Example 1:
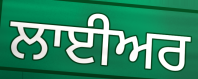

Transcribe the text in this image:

ਲਾਈਅਰ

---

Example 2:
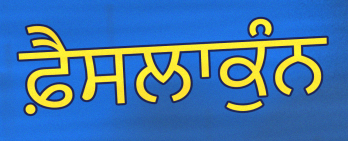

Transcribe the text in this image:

ਫ਼ੈਸਲਾਕੁੰਨ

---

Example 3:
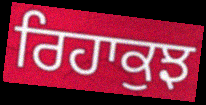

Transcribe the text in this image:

ਰਿਹਾਕੁਝ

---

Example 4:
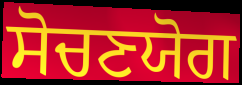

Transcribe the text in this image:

ਸੋਚਣਯੋਗ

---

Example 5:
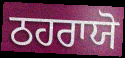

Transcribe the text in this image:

ਠਹਰਾਯੋ